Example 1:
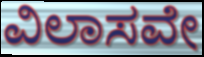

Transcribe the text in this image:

ವಿಲಾಸವೇ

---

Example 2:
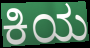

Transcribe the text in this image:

ಕಿಯ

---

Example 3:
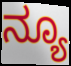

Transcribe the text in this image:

ನ್ಯೂ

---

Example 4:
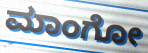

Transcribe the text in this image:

ಮಾಂಗೋ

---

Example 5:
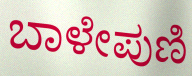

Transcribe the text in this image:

ಬಾಳೇಪುಣಿ